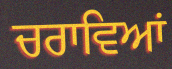
ਚਰਾਵਿਆਂ